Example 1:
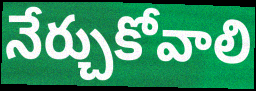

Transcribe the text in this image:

నేర్చుకోవాలి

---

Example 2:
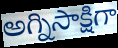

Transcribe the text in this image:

అగ్నిసాక్షిగా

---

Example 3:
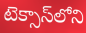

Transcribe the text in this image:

టెక్సాస్‌లోని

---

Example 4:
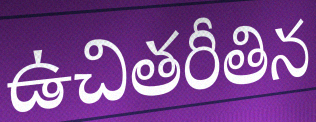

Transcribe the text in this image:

ఉచితరీతిన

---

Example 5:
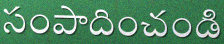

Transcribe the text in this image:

సంపాదించండి